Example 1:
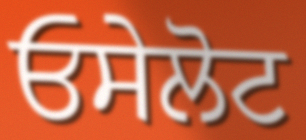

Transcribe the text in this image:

ਓਸੇਲੋਟ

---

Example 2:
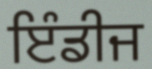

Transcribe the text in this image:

ਇੰਡੀਜ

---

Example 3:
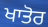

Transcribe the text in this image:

ਖਾਤੋਰ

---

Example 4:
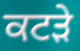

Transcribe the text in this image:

ਕਟੜੇ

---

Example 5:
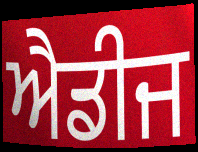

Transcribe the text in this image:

ਐਡੀਜ